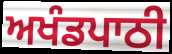
ਅਖੰਡਪਾਠੀ